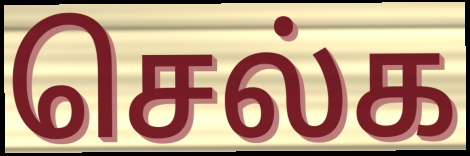
செல்க